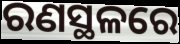
ରଣସ୍ଥଳରେ